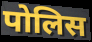
पोलिस